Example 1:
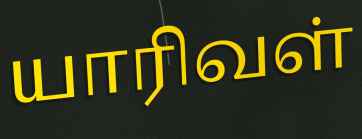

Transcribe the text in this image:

யாரிவள்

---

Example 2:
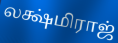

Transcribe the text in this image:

லக்ஷ்மிராஜ்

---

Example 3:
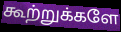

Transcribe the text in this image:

கூற்றுக்களே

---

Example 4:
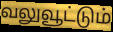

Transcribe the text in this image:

வலுவூட்டும்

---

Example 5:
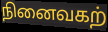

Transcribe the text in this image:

நினைவகற்